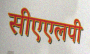
सीएएलपी